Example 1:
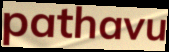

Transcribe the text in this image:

pathavu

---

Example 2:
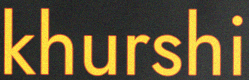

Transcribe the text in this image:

khurshi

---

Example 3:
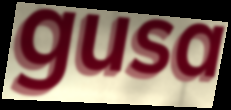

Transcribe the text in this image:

gusa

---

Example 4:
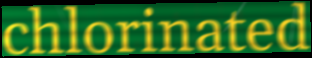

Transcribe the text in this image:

chlorinated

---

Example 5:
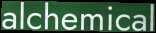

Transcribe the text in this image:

alchemical